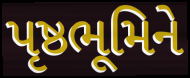
પૃષ્ઠભૂમિને